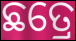
ଛତ୍ରେ